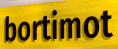
bortimot